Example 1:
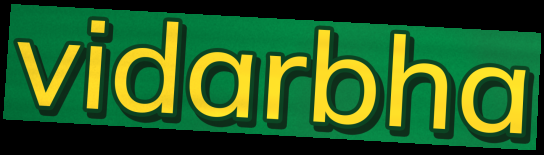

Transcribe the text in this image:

vidarbha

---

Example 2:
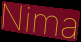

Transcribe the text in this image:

Nima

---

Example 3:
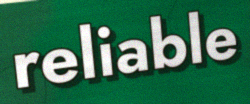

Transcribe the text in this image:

reliable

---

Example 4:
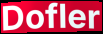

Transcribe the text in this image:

Dofler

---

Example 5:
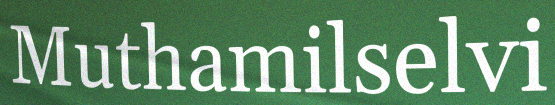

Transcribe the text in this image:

Muthamilselvi